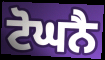
ਟੋਘਨੈ